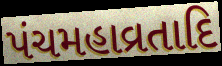
પંચમહાવ્રતાદિ